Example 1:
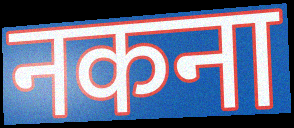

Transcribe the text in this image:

नकना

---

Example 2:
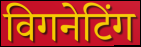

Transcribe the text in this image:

विगनेटिंग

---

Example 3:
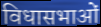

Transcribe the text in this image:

विधासभाओं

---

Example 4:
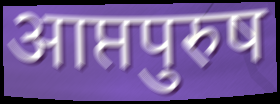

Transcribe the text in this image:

आप्तपुरुष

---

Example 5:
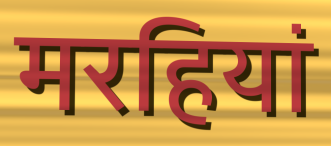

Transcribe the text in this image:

मरहियां